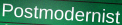
Postmodernist